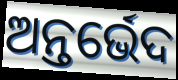
ଅନ୍ତର୍ଭେଦ